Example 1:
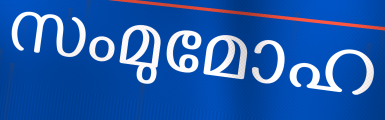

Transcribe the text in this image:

സംമുമോഹ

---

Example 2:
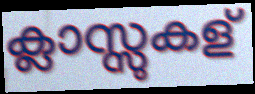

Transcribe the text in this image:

ക്ലാസ്സുകള്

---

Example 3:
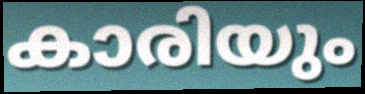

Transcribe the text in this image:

കാരിയും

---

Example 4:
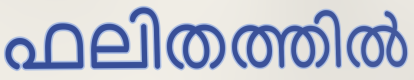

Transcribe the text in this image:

ഫലിതത്തിൽ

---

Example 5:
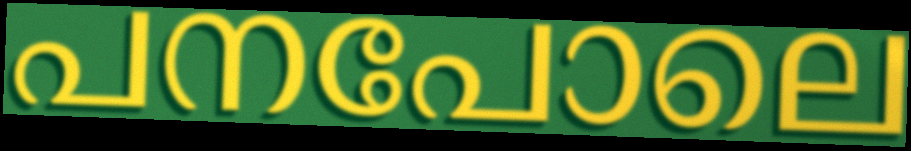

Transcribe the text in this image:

പനപോലെ